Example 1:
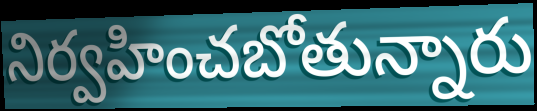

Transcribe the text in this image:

నిర్వహించబోతున్నారు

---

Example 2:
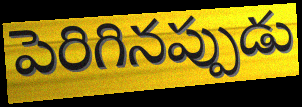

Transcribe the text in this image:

పెరిగినప్పుడు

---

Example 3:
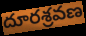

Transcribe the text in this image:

దూరశ్రవణ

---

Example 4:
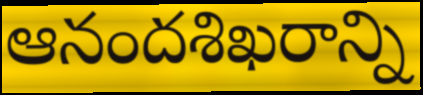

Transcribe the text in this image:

ఆనందశిఖరాన్ని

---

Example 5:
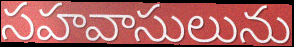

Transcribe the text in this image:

సహవాసులును